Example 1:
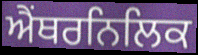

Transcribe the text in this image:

ਐਂਥਰਨਿਲਿਕ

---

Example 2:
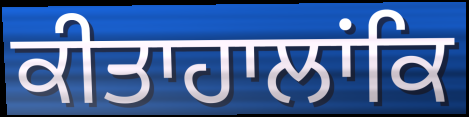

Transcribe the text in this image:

ਕੀਤਾਹਾਲਾਂਕਿ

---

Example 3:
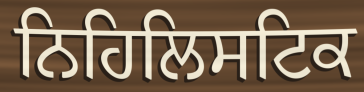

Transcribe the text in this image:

ਨਿਹਿਲਿਸਟਿਕ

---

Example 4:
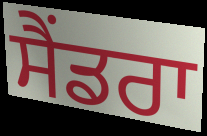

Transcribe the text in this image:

ਸੈਂਡਰਾ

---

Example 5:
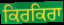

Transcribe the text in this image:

ਕਿਰਕਿਰਾ